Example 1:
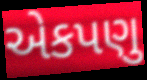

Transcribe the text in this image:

એકપણુ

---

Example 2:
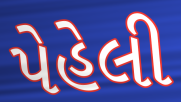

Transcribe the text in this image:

પેહેલી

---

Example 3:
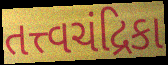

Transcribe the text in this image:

તત્ત્વચંદ્રિકા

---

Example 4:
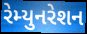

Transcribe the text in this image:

રેમ્યુનરેશન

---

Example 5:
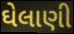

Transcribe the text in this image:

ઘેલાણી